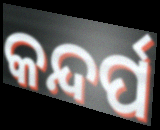
କନ୍ଦର୍ପ